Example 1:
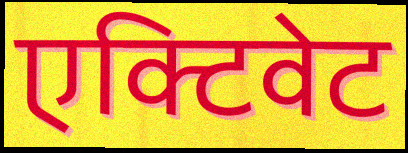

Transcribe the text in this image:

एक्टिवेट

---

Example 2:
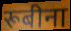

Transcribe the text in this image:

रूबीना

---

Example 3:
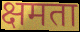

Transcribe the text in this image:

क्षमता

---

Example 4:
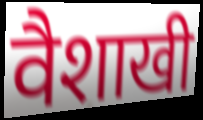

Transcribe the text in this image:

वैशाखी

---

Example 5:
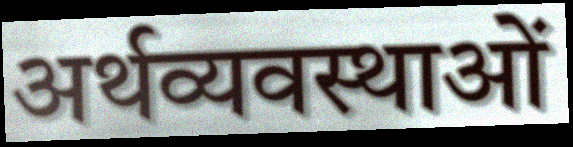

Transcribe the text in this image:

अर्थव्यवस्थाओं